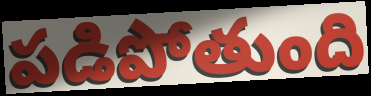
పడిపోతుంది